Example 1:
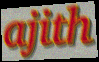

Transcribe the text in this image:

ajith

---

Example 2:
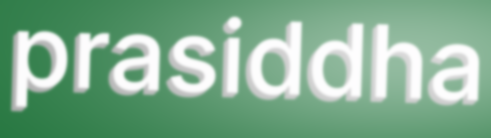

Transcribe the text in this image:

prasiddha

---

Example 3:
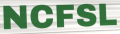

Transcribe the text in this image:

NCFSL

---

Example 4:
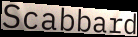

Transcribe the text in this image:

Scabbard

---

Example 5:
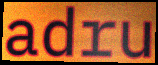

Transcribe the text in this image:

adru